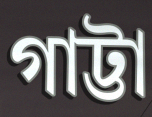
গাট্টা